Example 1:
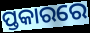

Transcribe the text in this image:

ପ୍ତକାରରେ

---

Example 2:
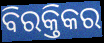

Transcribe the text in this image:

ବିରକ୍ତିକର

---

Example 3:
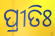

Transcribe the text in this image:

ପ୍ରୀତିଃ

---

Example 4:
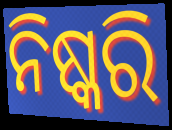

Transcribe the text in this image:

ନିଷ୍କରି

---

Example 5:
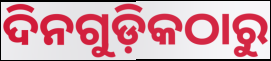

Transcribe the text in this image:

ଦିନଗୁଡ଼ିକଠାରୁ